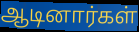
ஆடினார்கள்